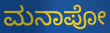
ಮನಾಪೋ